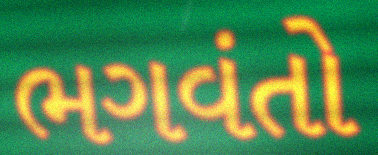
ભગવંતો